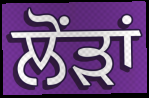
ਲੋਂੜਾਂ